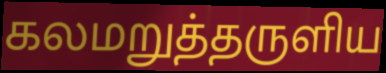
கலமறுத்தருளிய